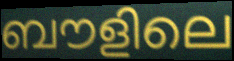
ബൗളിലെ